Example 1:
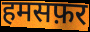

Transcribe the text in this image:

हमसफ़र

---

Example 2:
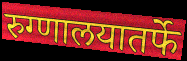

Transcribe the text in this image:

रुग्णालयातर्फे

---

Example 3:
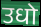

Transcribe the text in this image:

उधो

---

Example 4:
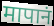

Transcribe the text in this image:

मापानं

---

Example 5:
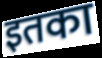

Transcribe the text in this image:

इतका